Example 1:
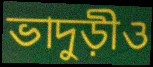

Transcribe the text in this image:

ভাদুড়ীও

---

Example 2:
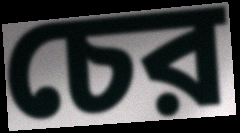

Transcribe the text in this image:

চের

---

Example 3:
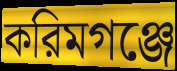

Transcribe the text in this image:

করিমগঞ্জে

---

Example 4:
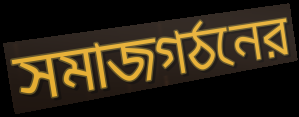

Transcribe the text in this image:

সমাজগঠনের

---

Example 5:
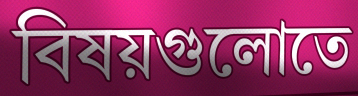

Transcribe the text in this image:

বিষয়গুলোতে